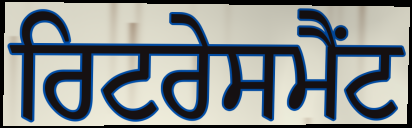
ਰਿਟਰੇਸਮੈਂਟ